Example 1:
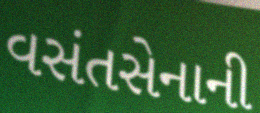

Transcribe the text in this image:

વસંતસેનાની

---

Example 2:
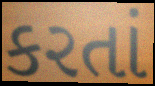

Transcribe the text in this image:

કરતાં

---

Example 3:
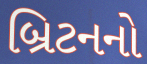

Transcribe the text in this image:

બ્રિટનનો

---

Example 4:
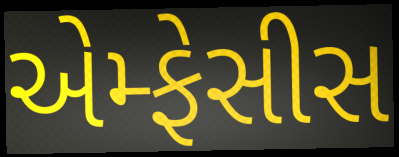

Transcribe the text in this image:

એમ્ફેસીસ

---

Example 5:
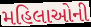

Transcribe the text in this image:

મહિલાઓની